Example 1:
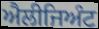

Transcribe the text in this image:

ਐਲੀਜਿਅੰਟ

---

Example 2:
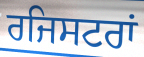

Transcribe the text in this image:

ਰਜਿਸਟਰਾਂ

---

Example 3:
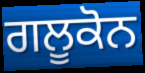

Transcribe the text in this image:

ਗਲੂਕੋਨ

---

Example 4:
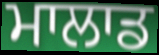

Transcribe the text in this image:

ਮਾਲਾਡ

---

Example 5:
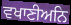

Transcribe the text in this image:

ਵਖਾਣੀਅਨਿ